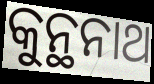
କୁନ୍ଥନାଥ